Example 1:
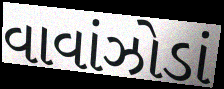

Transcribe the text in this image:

વાવાંઝોડાં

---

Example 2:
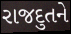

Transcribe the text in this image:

રાજદુતને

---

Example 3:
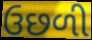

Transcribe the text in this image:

ઉછળી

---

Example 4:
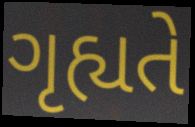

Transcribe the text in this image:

ગૃહ્યતે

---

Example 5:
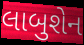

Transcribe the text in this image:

લાબુશેન